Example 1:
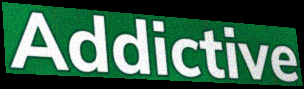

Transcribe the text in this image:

Addictive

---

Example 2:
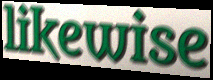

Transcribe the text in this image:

likewise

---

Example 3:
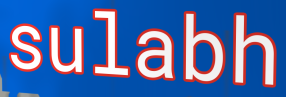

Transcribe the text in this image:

sulabh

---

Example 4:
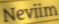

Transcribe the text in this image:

Neviim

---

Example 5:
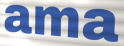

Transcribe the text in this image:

ama